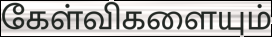
கேள்விகளையும்